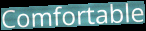
Comfortable